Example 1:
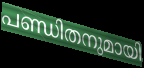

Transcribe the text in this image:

പണ്ഡിതനുമായി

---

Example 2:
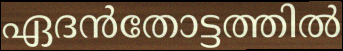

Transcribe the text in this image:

ഏദൻതോട്ടത്തിൽ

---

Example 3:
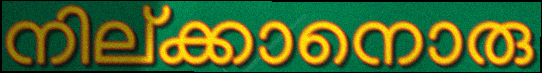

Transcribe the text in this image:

നില്ക്കാനൊരു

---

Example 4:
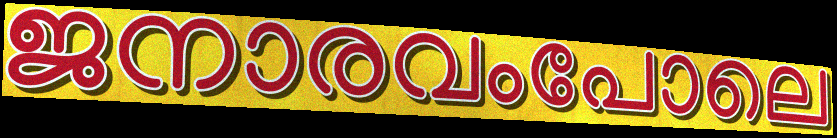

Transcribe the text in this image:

ജനാരവംപോലെ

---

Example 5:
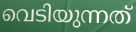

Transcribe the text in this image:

വെടിയുന്നത്